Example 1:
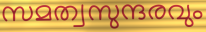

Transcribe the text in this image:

സമത്വസുന്ദരവും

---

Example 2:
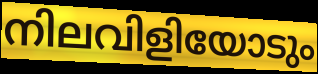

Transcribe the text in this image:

നിലവിളിയോടും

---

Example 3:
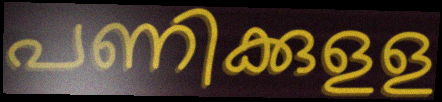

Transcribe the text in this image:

പണിക്കുളള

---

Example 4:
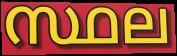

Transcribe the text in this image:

സ്ഥല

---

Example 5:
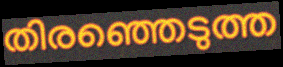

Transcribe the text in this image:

തിരഞ്ഞെടുത്ത